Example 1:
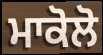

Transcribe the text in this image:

ਮਾਕੋਲੋ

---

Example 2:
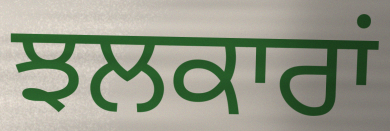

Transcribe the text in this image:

ਝਲਕਾਰਾਂ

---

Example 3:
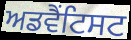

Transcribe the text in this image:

ਅਡਵੈਂਟਿਸਟ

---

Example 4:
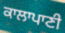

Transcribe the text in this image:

ਕਾਲਾਪਾਣੀ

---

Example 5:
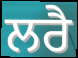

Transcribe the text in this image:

ਲਰੈ